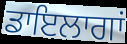
ਡਾਇਲਾਗਾਂ